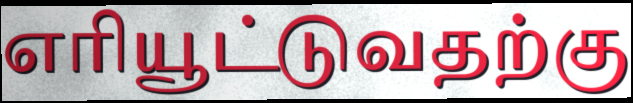
எரியூட்டுவதற்கு